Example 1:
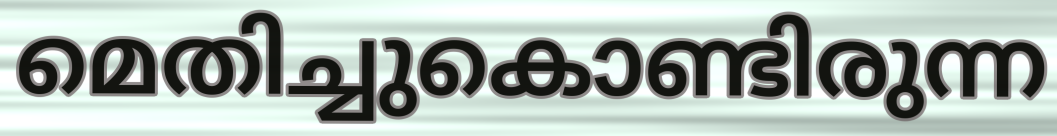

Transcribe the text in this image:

മെതിച്ചുകൊണ്ടിരുന്ന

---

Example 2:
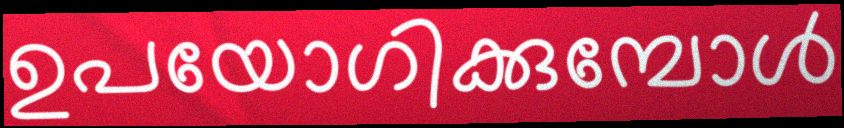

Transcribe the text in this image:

ഉപയോഗിക്കുമ്പോൾ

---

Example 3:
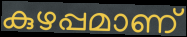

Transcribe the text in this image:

കുഴപ്പമാണ്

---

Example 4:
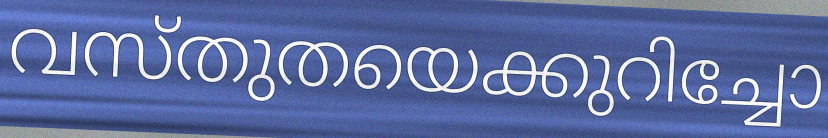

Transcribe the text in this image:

വസ്തുതയെക്കുറിച്ചോ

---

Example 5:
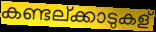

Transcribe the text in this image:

കണ്ടല്ക്കാടുകള്